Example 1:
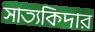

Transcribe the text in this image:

সাত্যকিদার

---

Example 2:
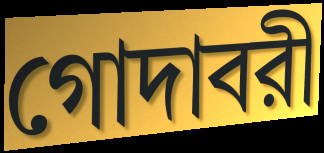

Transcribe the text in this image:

গোদাবরী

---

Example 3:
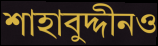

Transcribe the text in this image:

শাহাবুদ্দীনও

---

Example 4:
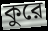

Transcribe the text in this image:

কুরে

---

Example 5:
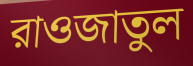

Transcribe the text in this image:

রাওজাতুল